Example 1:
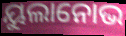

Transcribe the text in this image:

ୟୁଲାନୋଭ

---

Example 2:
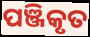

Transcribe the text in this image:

ପଞ୍ଜିକୃତ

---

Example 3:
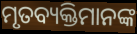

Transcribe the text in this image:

ମୃତବ୍ୟକ୍ତିମାନଙ୍କ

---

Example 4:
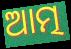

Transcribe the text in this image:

ଆତ୍ମ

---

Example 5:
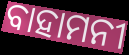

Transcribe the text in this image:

ବାହାମନୀ